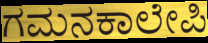
ಗಮನಕಾಲೇಪಿ